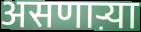
असणाऱ्‍या